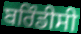
ਬਰਿੰਡੀਸੀ